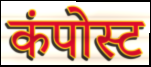
कंपोस्ट